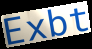
Exbt